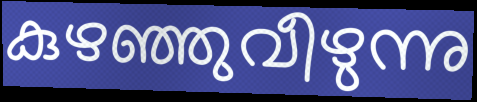
കുഴഞ്ഞുവീഴുന്നു